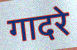
गादरे